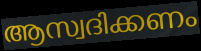
ആസ്വദിക്കണം